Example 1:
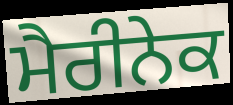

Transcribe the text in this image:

ਮੈਰੀਨੇਕ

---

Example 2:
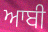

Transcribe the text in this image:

ਆਬੀ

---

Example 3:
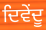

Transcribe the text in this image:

ਦਿਵੇਂਦੂ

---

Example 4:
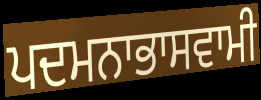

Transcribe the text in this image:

ਪਦਮਨਾਭਾਸਵਾਮੀ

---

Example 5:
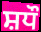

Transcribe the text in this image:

ਸ਼ਧੌ